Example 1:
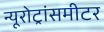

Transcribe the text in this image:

न्यूरोट्रांसमीटर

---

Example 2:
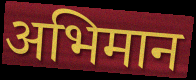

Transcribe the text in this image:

अभिमान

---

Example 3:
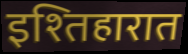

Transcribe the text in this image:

इश्तिहारात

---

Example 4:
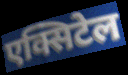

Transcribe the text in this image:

एक्सिटेल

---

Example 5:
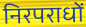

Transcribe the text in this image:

निरपराधों